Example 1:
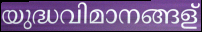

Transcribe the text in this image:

യുദ്ധവിമാനങ്ങള്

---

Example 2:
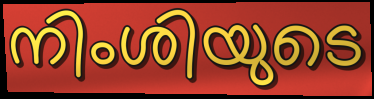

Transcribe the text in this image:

നിംശിയുടെ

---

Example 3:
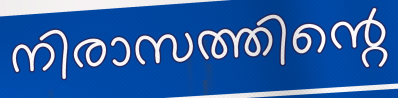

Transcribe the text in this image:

നിരാസത്തിന്റെ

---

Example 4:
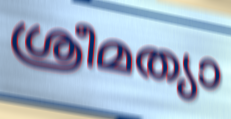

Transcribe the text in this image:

ശ്രീമത്യാ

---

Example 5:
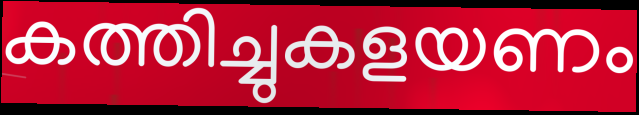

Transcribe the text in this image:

കത്തിച്ചുകളയണം